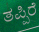
ತಪ್ಪಿರೆ